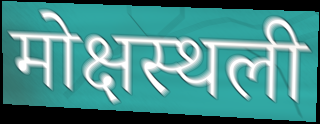
मोक्षस्थली